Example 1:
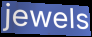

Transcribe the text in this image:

jewels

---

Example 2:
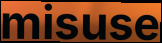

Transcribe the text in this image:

misuse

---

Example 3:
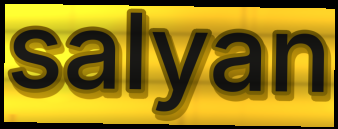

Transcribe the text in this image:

salyan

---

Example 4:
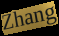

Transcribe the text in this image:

Zhang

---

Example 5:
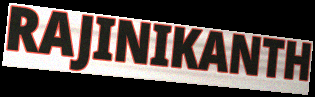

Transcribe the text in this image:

RAJINIKANTH